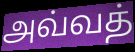
அவ்வத்